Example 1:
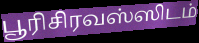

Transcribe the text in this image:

பூரிசிரவஸ்ஸிடம்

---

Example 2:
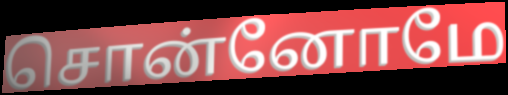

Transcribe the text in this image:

சொன்னோமே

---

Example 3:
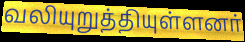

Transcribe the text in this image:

வலியுறுத்தியுள்ளனர்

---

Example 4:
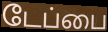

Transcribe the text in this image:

டேப்பை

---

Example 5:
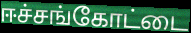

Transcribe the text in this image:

ஈச்சங்கோட்டை